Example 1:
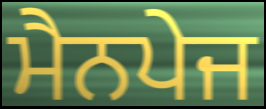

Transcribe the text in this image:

ਮੈਨਪੇਜ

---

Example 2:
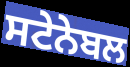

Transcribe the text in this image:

ਸਟੇਨੇਬਲ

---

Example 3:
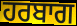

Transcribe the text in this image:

ਹਰਬਾਗ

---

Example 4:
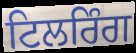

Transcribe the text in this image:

ਟਿਲਰਿੰਗ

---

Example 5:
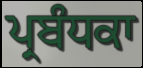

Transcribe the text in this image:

ਪ੍ਰਬੰਧਕਾ